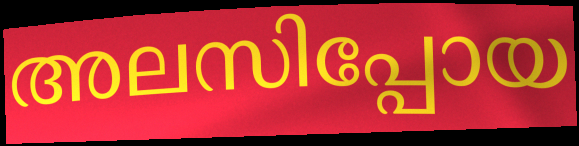
അലസിപ്പോയ